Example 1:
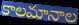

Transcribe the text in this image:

కాలమానాల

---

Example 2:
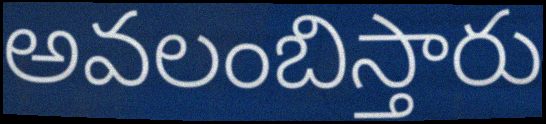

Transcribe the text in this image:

అవలంబిస్తారు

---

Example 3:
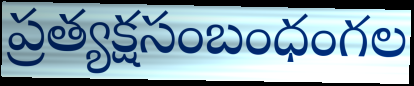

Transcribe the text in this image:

ప్రత్యక్షసంబంధంగల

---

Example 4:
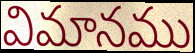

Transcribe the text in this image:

విమానము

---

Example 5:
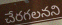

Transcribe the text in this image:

చేరగలనని